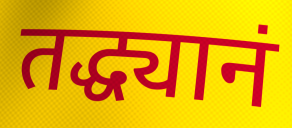
तद्ध्यानं